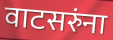
वाटसरुंना